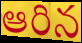
ఆరిన